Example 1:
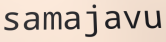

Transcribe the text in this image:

samajavu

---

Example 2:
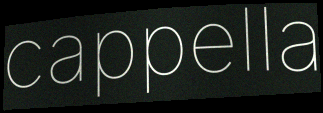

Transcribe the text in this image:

cappella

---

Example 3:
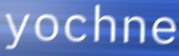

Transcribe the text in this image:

yochne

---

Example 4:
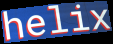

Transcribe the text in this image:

helix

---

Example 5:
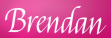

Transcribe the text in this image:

Brendan